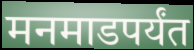
मनमाडपर्यंत